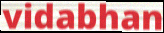
vidabhan